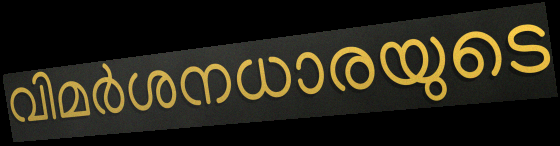
വിമർശനധാരയുടെ